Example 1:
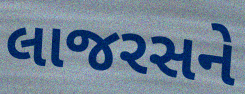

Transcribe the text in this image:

લાજરસને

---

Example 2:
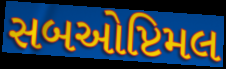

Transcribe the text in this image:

સબઓપ્ટિમલ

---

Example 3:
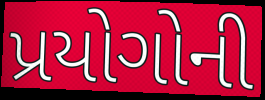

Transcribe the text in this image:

પ્રયોગોની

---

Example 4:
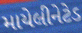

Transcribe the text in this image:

માયેલીનેટેડ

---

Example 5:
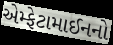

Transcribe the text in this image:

એમ્ફેટામાઈનનો